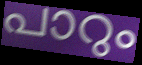
പാറും